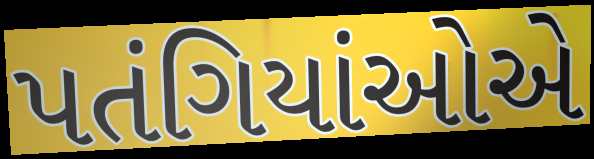
પતંગિયાંઓએ